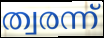
ത്വരന്ന്